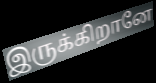
இருக்கிறானே